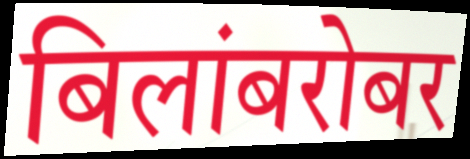
बिलांबरोबर